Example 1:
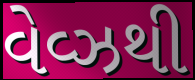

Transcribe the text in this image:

વેવ્ઝથી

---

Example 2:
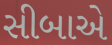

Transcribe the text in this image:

સીબાએ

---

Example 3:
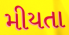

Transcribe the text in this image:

મીયતા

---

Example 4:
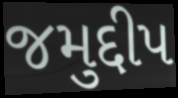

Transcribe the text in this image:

જમુદ્દીપ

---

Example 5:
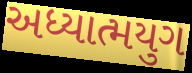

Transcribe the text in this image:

અધ્યાત્મયુગ